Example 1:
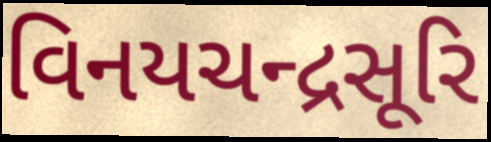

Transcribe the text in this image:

વિનયચન્દ્રસૂરિ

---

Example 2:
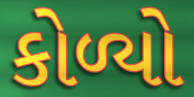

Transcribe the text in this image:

કોળ્યો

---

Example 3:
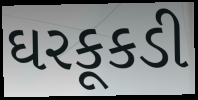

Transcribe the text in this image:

ઘરકૂકડી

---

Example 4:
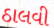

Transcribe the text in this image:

ઠાલવી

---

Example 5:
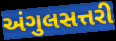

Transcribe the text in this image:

અંગુલસત્તરી